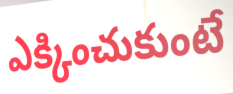
ఎక్కించుకుంటే